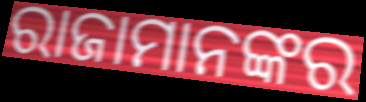
ରାଜାମାନଙ୍କର